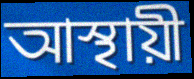
আস্থায়ী